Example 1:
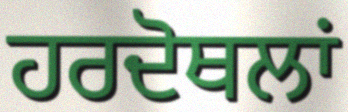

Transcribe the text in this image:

ਹਰਦੋਥਲਾਂ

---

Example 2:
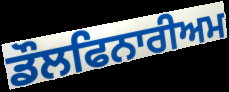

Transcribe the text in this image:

ਡੌਲਫਿਨਾਰੀਅਮ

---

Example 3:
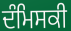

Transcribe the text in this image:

ਦੰਮਿਸਕੀ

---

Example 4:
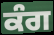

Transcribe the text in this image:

ਕੰਗ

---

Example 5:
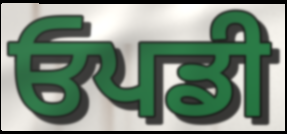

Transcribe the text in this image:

ਓਪਡੀ